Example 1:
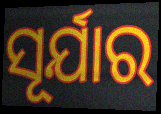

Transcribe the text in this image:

ସୂର୍ଯାର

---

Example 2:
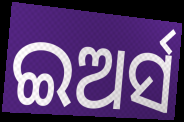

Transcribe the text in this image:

ଇଅର୍ସ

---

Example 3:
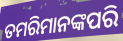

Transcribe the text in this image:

ତମରିମାନଙ୍କପରି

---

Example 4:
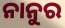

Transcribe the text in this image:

ନାନୁର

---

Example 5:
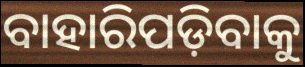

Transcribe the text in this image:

ବାହାରିପଡ଼ିବାକୁ